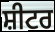
ਸ਼ੀਟਰ